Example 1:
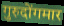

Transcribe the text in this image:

गुरुदोंगमार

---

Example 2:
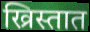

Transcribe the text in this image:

ख्रिस्तात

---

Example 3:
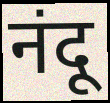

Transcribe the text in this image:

नंदू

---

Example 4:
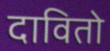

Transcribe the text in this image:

दावितो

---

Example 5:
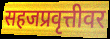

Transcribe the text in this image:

सहजप्रवृत्तीवर